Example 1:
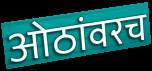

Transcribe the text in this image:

ओठांवरच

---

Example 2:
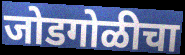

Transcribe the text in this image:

जोडगोळीचा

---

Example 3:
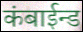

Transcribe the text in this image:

कंबाईन्ड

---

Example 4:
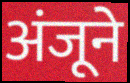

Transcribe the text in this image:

अंजूने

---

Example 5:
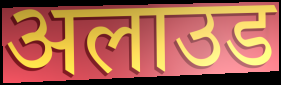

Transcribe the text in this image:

अलाउड